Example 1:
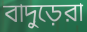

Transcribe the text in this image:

বাদুড়েরা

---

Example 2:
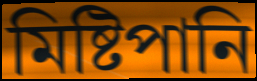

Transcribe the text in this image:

মিষ্টিপানি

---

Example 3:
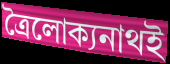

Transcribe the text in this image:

ত্রৈলোক্যনাথই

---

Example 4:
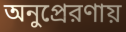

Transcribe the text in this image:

অনুপ্রেরণায়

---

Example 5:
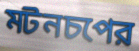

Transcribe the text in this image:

মটনচপের